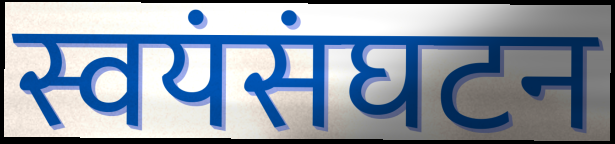
स्वयंसंघटन